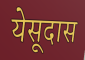
येसूदास